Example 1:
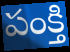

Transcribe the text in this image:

పంక్తి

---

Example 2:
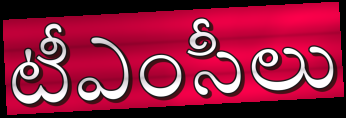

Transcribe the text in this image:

టీఎంసీలు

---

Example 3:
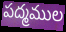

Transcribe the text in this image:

పద్మముల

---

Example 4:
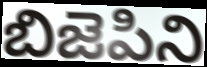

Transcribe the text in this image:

బిజెపిని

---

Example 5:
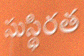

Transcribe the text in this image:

సుస్థిరత